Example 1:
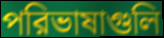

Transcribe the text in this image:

পরিভাষাগুলি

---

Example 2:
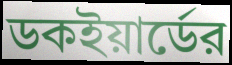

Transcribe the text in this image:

ডকইয়ার্ডের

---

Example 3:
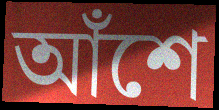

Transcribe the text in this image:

আঁশে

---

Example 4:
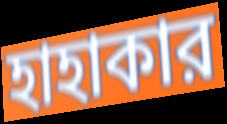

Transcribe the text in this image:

হাহাকার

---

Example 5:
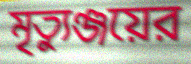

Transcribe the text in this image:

মৃত্যুঞ্জয়ের